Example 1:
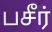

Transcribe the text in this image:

பசீர்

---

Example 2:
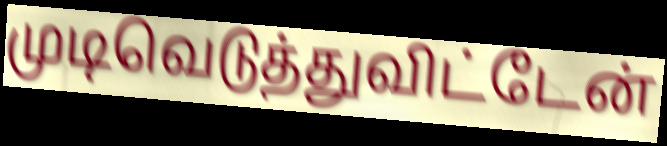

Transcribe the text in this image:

முடிவெடுத்துவிட்டேன்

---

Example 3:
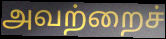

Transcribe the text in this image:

அவற்றைச்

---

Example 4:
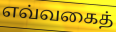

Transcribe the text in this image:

எவ்வகைத்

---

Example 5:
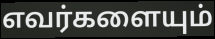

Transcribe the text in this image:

எவர்களையும்